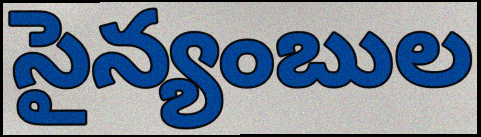
సైన్యంబుల